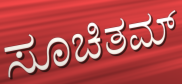
ಸೂಚಿತಮ್